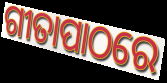
ଗୀତାପାଠରେ